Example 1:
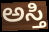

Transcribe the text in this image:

ಅಸ್ತಿ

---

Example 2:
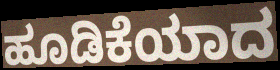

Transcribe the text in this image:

ಹೂಡಿಕೆಯಾದ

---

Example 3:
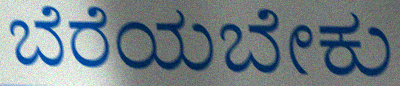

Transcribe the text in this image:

ಬೆರೆಯಬೇಕು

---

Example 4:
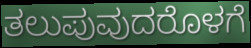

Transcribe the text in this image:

ತಲುಪುವುದರೊಳಗೆ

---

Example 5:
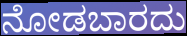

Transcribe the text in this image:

ನೋಡಬಾರದು